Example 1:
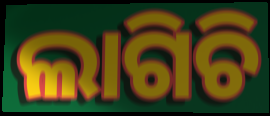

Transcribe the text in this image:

ଲାଗିଚି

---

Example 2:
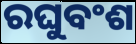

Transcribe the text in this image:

ରଘୁବଂଶ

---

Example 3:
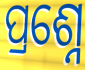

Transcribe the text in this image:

ପ୍ରଶ୍ନେ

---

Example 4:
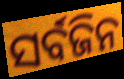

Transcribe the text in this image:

ସର୍ବଜିନ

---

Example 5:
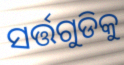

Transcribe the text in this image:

ସର୍ତ୍ତଗୁଡିକୁ